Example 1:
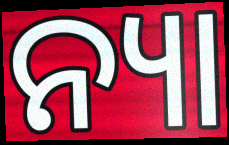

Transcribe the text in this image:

ନ୍ୟା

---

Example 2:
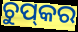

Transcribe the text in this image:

ଚୁପ୍‌କର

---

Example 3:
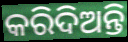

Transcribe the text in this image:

କରିଦିଅନ୍ତି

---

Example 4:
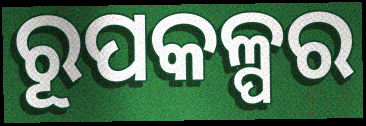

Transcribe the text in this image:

ରୂପକଳ୍ପର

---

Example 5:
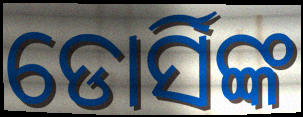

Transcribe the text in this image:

ଡୋର୍ସିଙ୍କ